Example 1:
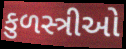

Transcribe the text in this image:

કુળસ્ત્રીઓ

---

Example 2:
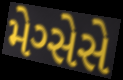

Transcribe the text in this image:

મેગ્સેસે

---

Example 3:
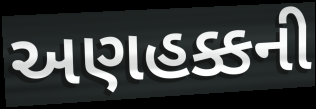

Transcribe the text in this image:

અણહક્કની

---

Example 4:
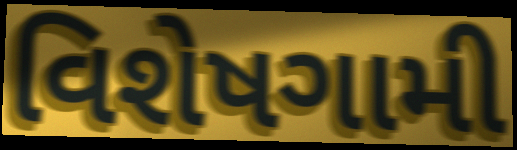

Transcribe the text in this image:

વિશેષગામી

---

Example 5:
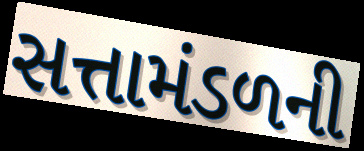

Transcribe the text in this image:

સત્તામંડળની